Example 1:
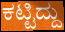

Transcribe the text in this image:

ಕಟ್ಟಿದ್ದು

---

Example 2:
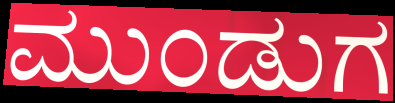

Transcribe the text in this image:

ಮುಂಡುಗ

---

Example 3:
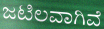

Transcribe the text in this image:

ಜಟಿಲವಾಗಿವೆ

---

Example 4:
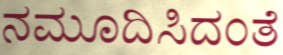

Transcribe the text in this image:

ನಮೂದಿಸಿದಂತೆ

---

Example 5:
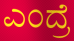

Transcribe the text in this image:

ಎಂದ್ರೆ